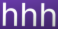
hhh